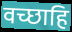
वच्छाहि